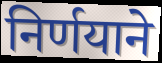
निर्णयाने